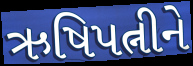
ઋષિપત્નીને